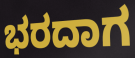
ಭರದಾಗ